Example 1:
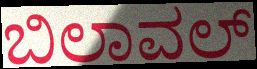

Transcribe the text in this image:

ಬಿಲಾವಲ್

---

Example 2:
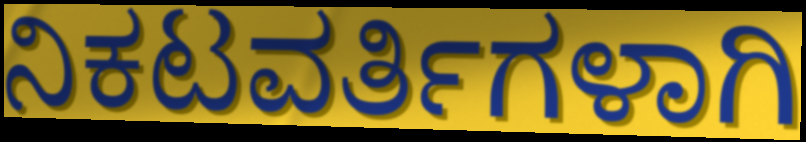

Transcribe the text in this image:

ನಿಕಟವರ್ತಿಗಳಾಗಿ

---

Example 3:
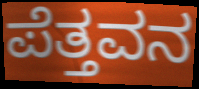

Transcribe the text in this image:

ಪೆತ್ತವನ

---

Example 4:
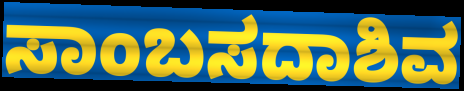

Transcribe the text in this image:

ಸಾಂಬಸದಾಶಿವ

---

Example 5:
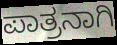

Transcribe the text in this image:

ಪಾತ್ರನಾಗಿ